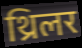
थ्रिलर